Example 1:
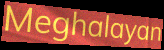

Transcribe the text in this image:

Meghalayan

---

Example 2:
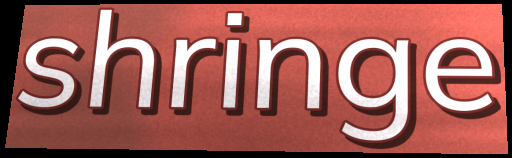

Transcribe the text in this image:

shringe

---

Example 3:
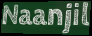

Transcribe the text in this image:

Naanjil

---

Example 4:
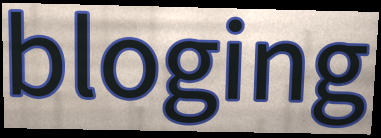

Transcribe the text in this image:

bloging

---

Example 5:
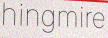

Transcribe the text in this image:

hingmire